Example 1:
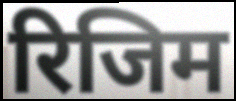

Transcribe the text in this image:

रिजिम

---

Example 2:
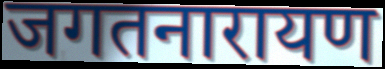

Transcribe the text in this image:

जगतनारायण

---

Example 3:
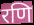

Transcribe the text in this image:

रणि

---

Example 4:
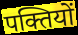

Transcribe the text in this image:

पक्तियों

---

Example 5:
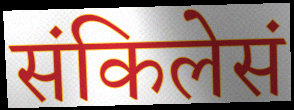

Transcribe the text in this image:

संकिलेसं